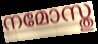
നമോസ്തു